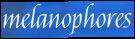
melanophores